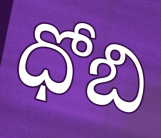
ధోబి